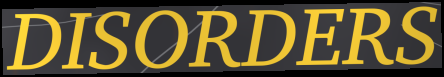
DISORDERS